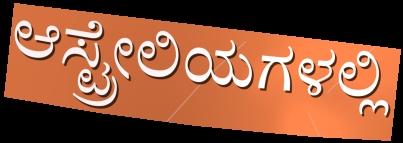
ಆಸ್ಟ್ರೇಲಿಯಗಳಲ್ಲಿ